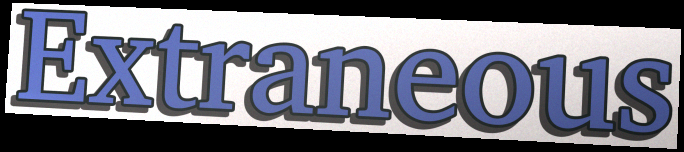
Extraneous